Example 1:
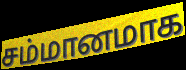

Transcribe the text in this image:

சம்மானமாக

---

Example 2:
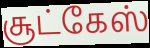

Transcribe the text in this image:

சூட்கேஸ்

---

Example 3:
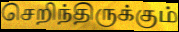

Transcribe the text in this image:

செறிந்திருக்கும்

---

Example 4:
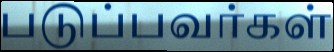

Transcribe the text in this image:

படுப்பவர்கள்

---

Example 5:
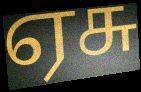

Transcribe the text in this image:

ஏசு